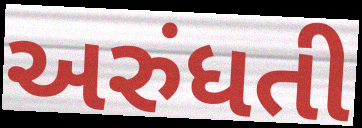
અરુંધતી